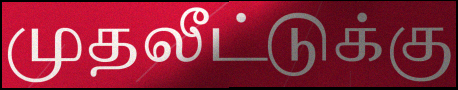
முதலீட்டுக்கு